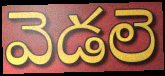
వెడలె